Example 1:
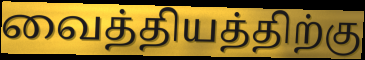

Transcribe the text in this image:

வைத்தியத்திற்கு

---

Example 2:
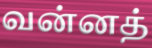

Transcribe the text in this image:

வன்னத்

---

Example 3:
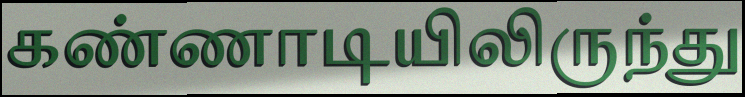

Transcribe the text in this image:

கண்ணாடியிலிருந்து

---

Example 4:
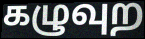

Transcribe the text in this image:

கழுவுற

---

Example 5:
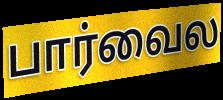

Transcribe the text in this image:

பார்வைல